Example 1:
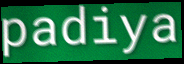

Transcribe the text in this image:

padiya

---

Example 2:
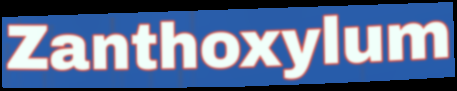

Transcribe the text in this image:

Zanthoxylum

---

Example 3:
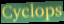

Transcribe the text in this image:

Cyclops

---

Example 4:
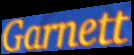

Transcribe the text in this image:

Garnett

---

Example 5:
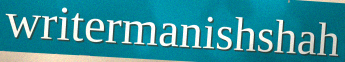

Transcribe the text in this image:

writermanishshah